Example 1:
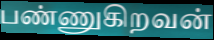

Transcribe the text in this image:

பண்ணுகிறவன்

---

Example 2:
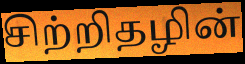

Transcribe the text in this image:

சிற்றிதழின்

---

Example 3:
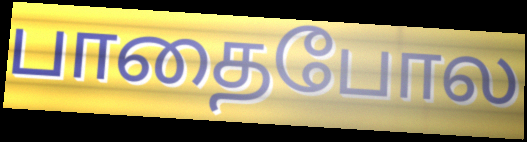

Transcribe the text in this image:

பாதைபோல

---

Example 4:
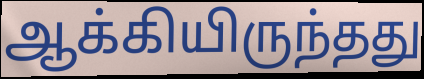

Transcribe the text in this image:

ஆக்கியிருந்தது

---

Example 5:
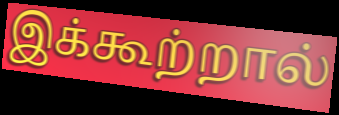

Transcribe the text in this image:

இக்கூற்றால்